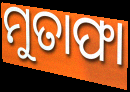
ମୁତାଫା